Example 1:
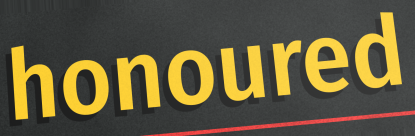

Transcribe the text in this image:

honoured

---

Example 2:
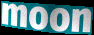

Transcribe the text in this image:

moon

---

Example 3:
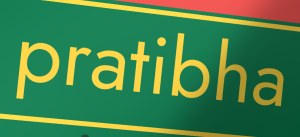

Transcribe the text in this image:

pratibha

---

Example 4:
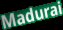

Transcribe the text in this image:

Madurai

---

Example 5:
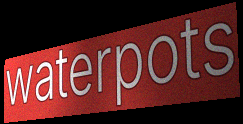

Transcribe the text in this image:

waterpots